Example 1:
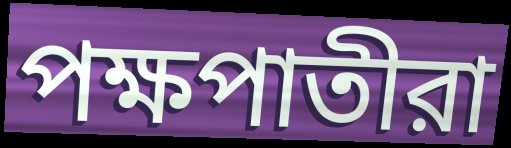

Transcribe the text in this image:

পক্ষপাতীরা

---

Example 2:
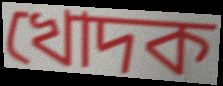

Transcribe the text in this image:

খোদক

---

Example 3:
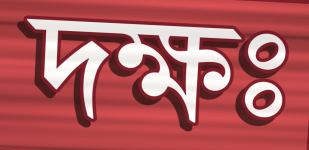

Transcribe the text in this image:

দক্ষঃ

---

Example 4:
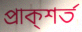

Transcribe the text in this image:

প্রাক্‌শর্ত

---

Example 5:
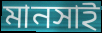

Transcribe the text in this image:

মানসাই